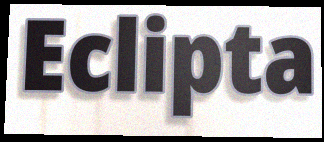
Eclipta